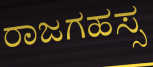
ರಾಜಗಹಸ್ಸ